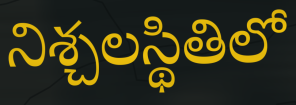
నిశ్చలస్థితిలో